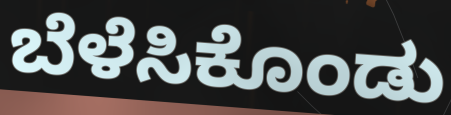
ಬೆಳೆಸಿಕೊಂಡು